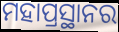
ମହାପ୍ରସ୍ଥାନର